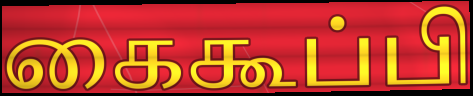
கைகூப்பி